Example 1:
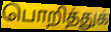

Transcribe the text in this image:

பொறித்துக்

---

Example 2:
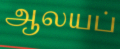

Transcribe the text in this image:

ஆலயப்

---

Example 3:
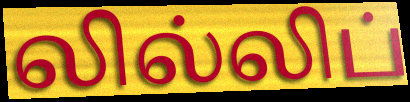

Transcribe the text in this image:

லில்லிப்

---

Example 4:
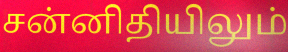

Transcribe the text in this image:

சன்னிதியிலும்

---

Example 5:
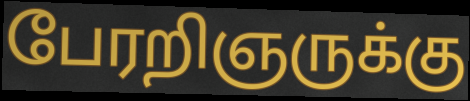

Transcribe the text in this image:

பேரறிஞருக்கு